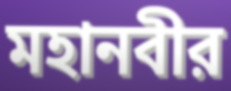
মহানবীর